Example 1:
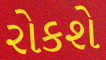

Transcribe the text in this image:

રોકશે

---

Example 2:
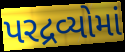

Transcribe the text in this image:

પરદ્રવ્યોમાં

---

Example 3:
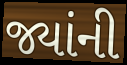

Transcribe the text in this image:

જ્યાંની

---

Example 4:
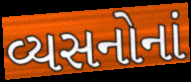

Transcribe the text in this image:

વ્યસનોનાં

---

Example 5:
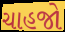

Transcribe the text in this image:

ચાહજો